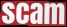
scam